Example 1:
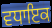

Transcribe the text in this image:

ਵਧਾਇਕ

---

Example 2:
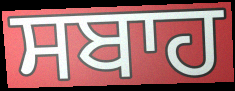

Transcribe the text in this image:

ਸਬਾਹ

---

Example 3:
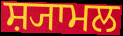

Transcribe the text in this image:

ਸ਼੍ਯਾਮਲ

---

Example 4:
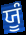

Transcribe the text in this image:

ਯੂੰ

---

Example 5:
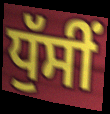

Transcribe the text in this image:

ਧੁੱਸੀਂ